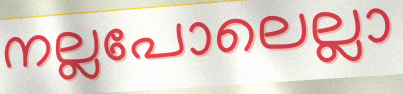
നല്ലപോലെല്ലാ